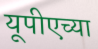
यूपीएच्या